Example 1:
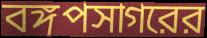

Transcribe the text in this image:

বঙ্গপসাগরের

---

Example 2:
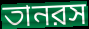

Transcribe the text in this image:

তানরস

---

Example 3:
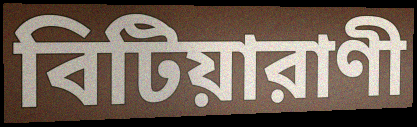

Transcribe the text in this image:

বিটিয়ারাণী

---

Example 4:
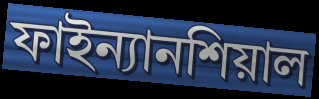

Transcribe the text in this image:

ফাইন্যানশিয়াল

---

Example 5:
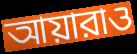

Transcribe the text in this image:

আয়ারাও